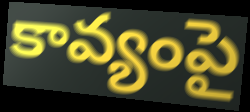
కావ్యంపై